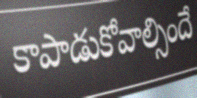
కాపాడుకోవాల్సిందే